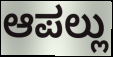
ಆಪಲ್ಲು